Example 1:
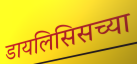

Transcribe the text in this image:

डायलिसिसच्या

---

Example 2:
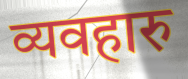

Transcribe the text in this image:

व्यवहारु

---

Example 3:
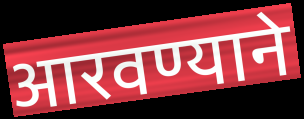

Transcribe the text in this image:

आरवण्याने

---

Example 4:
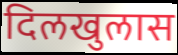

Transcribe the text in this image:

दिलखुलास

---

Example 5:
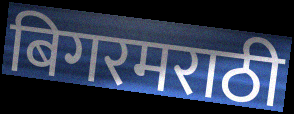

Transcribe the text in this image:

बिगरमराठी